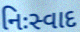
નિઃસ્વાદ